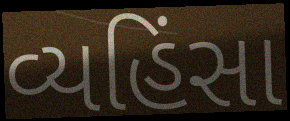
વ્યહિંસા